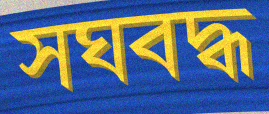
সঘবদ্ধ